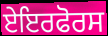
ਏਇਰਫੋਰਸ